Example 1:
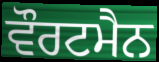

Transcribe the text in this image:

ਵੌਰਟਮੈਨ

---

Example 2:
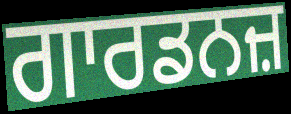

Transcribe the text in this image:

ਗਾਰਡਨਜ਼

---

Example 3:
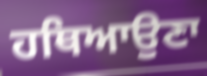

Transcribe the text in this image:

ਹਥਿਆਉਣਾ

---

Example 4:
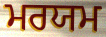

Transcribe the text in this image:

ਮਰਯਮ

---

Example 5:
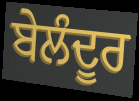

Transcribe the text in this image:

ਬੇਲੰਦੂਰ